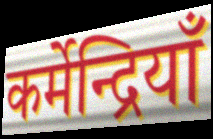
कर्मेन्द्रियाँ